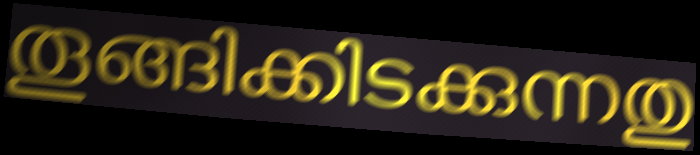
തൂങ്ങിക്കിടക്കുന്നതു